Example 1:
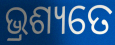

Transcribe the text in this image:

ଭ୍ରଶ୍ୟତେ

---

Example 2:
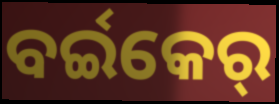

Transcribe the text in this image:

ବର୍ଇକେର୍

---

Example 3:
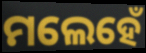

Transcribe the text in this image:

ମଲେହେଁ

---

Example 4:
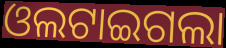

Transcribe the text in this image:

ଓଲଟାଇଗଲା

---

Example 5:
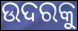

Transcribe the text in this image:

ଉଦରକୁ